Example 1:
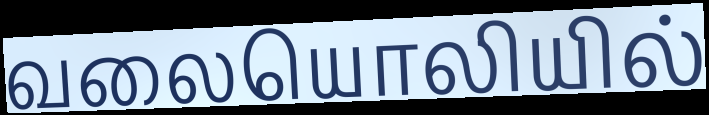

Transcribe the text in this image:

வலையொலியில்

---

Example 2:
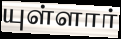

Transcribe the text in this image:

யுள்ளார்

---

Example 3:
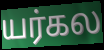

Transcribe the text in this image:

யர்கல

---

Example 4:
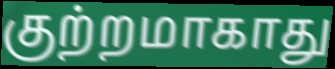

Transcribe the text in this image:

குற்றமாகாது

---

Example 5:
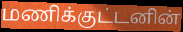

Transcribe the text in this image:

மணிக்குட்டனின்